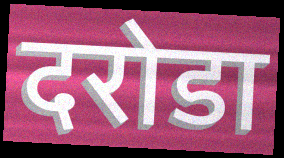
दरोडा